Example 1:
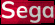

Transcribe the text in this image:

Sega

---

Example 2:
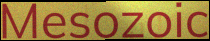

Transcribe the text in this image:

Mesozoic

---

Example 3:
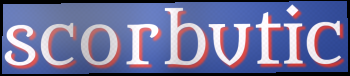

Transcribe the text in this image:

scorbutic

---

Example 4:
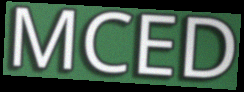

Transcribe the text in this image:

MCED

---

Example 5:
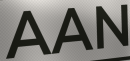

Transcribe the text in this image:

AAN